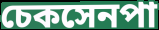
চেকসেনপা